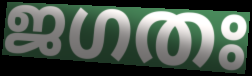
ജഗതഃ